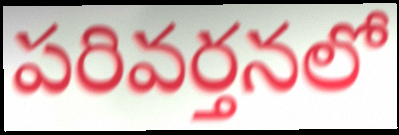
పరివర్తనలో